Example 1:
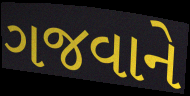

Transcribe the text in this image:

ગજવાને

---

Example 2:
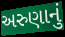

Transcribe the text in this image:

અરુણાનું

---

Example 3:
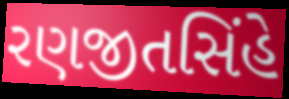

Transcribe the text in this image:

રણજીતસિંહે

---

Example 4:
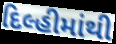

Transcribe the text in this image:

દિલ્હીમાંથી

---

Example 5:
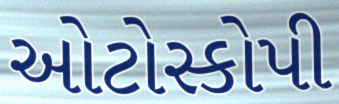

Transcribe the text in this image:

ઓટોસ્કોપી